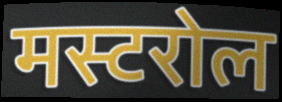
मस्टरोल